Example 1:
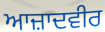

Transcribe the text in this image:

ਆਜ਼ਾਦਵੀਰ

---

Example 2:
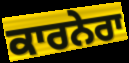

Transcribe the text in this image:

ਕਾਰਨੇਰਾ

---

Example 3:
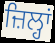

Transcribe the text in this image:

ਜ਼ਿਲ੍ਹਾਂ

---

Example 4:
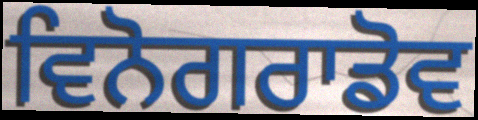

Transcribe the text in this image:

ਵਿਨੋਗਰਾਡੋਵ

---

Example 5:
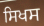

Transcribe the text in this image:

ਸਿਖਸ